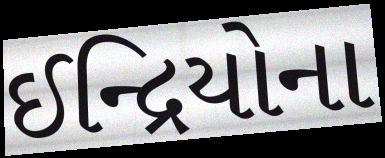
ઈન્દ્રિયોના